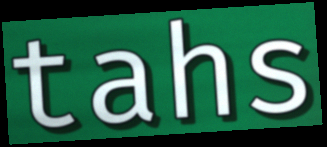
tahs